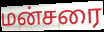
மன்சரை